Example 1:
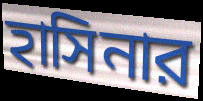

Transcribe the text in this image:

হাসিনার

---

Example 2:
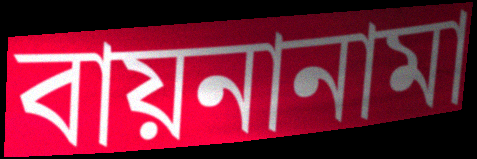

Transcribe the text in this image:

বায়নানামা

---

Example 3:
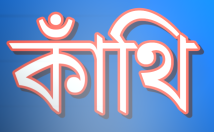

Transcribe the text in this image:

কাঁথি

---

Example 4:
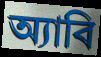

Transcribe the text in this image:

অ্যাবি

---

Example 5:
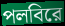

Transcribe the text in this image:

পলবিরে